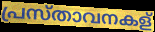
പ്രസ്താവനകള്